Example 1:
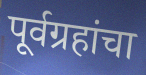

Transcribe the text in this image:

पूर्वग्रहांचा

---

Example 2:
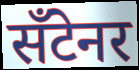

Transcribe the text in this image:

सँटेनर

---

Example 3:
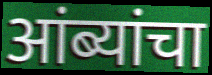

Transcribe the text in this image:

आंब्यांचा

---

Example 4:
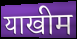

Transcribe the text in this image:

याखीम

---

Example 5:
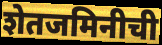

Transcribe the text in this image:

शेतजमिनीची